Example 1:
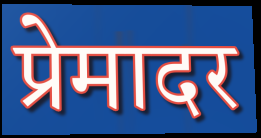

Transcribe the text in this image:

प्रेमादर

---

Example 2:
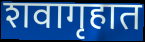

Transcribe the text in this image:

शवागृहात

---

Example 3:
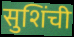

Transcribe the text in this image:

सुशिंची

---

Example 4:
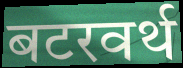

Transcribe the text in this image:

बटरवर्थ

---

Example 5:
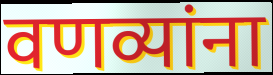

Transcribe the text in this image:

वणव्यांना